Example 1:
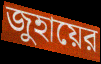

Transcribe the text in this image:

জুহায়ের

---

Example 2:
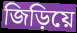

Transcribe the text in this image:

জিড়িয়ে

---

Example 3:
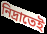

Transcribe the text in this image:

নিদ্রাতেই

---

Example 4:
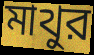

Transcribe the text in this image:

মাথুর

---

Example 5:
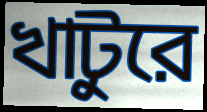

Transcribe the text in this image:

খাটুরে